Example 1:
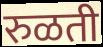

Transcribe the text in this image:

रुळती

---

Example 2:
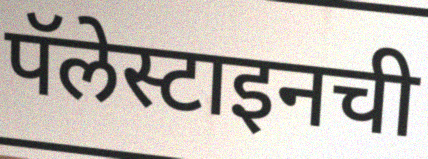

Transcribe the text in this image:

पॅलेस्टाइनची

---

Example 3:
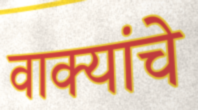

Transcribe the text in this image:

वाक्यांचे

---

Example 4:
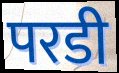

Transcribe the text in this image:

परडी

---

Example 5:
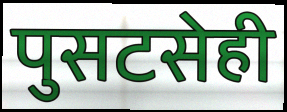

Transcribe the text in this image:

पुसटसेही